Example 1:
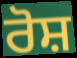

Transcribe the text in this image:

ਰੋਸ਼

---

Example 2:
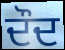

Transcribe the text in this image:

ਦੌਦ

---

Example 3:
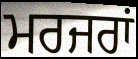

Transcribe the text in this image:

ਮਰਜਰਾਂ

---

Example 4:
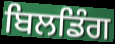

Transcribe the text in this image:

ਬਿਲਡਿੰਗ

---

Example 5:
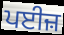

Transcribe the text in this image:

ਪਈਜ਼